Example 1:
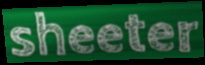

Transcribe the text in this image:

sheeter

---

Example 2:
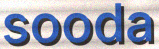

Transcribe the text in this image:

sooda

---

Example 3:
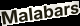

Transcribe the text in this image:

Malabars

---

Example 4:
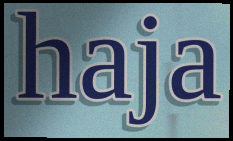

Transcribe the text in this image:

haja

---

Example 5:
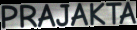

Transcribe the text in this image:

PRAJAKTA